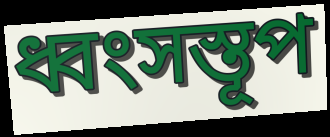
ধ্বংসস্তূপ